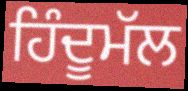
ਹਿੰਦੂਮੱਲ